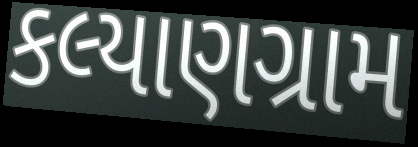
કલ્યાણગ્રામ